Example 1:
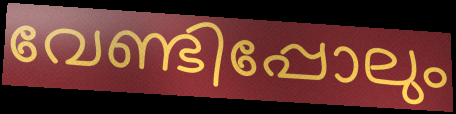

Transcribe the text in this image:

വേണ്ടിപ്പോലും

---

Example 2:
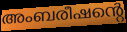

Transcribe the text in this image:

അംബരീഷന്റെ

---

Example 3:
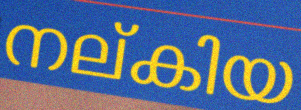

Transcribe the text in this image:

നല്‌കിയ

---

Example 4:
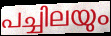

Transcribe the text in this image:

പച്ചിലയും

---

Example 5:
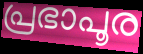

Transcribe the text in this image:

പ്രഭാപൂര